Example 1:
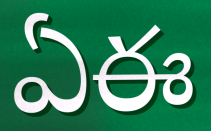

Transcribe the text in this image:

ఏఈ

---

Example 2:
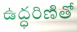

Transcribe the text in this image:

ఉద్ధరిణితో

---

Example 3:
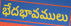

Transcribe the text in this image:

భేదభావములు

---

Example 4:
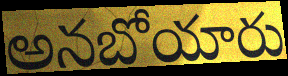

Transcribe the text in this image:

అనబోయారు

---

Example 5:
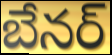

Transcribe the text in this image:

బేనర్